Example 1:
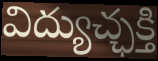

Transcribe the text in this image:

విద్యుచ్ఛక్తి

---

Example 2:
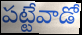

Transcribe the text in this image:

పట్టేవాడో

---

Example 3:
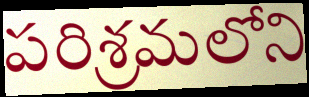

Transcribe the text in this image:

పరిశ్రమలోని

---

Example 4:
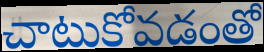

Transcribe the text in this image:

చాటుకోవడంతో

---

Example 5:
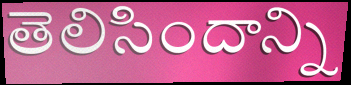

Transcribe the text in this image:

తెలిసిందాన్ని